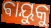
ଵାୟୁକୁ